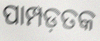
ପାମ୍ପଡ଼ତକ